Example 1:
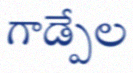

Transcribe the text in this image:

గాడ్పేల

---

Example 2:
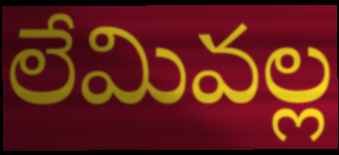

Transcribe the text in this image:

లేమివల్ల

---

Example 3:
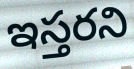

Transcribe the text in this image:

ఇస్తరని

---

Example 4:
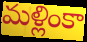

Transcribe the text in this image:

మళ్లింకా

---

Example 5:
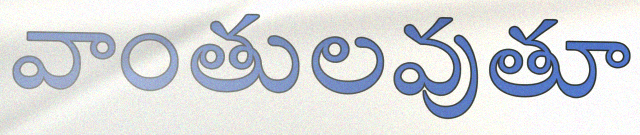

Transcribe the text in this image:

వాంతులవుతూ